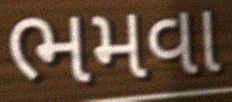
ભમવા